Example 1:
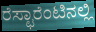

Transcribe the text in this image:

ರೆಸ್ಟಾರೆಂಟಿನಲ್ಲಿ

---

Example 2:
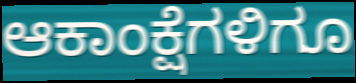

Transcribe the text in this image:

ಆಕಾಂಕ್ಷೆಗಳಿಗೂ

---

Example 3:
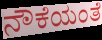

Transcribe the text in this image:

ನೌಕೆಯಂತೆ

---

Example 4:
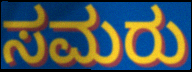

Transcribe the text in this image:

ಸಮರು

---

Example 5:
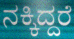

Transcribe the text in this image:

ನಕ್ಕಿದ್ದರೆ